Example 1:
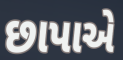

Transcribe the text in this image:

છાપાએ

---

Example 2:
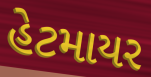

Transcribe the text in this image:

હેટમાયર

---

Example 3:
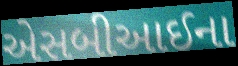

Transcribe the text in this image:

એસબીઆઈના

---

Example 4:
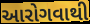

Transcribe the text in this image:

આરોગવાથી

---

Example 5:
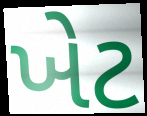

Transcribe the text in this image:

ખેટ